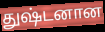
துஷ்டனான